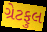
ગ્રેટફુલ